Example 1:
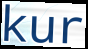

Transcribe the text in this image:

kur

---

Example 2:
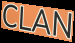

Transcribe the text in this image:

CLAN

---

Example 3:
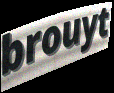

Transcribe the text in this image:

brouyt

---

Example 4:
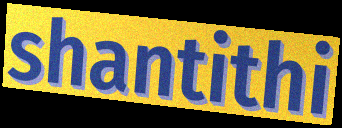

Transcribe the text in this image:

shantithi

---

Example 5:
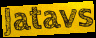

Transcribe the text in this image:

Jatavs